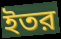
ইতর